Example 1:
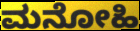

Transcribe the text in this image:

ಮನೋಹಿ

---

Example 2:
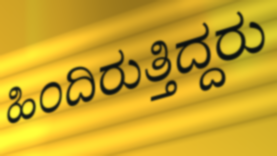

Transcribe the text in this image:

ಹಿಂದಿರುತ್ತಿದ್ದರು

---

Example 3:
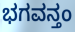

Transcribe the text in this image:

ಭಗವನ್ತಂ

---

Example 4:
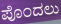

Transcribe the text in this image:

ಪೊಂದಲು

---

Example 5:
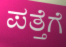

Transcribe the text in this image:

ಪತ್ತೆಗೆ